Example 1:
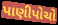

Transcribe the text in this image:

પાણીપોચો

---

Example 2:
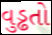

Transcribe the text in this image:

વુડ્ઢતો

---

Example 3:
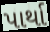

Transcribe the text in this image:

પાર્થા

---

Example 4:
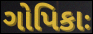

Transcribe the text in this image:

ગોપિકાઃ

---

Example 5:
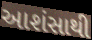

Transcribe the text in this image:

આશંસાથી